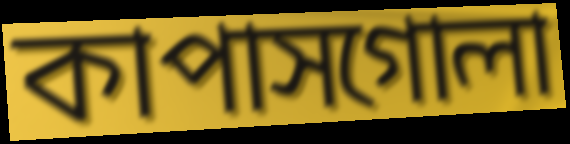
কাপাসগোলা